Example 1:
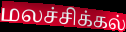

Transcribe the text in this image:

மலச்சிக்கல்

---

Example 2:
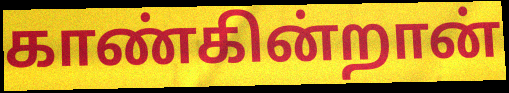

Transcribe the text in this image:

காண்கின்றான்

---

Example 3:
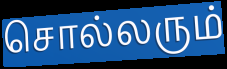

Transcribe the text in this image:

சொல்லரும்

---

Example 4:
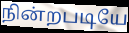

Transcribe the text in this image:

நின்றபடியே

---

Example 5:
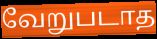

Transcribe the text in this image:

வேறுபடாத